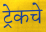
ट्रेकचे